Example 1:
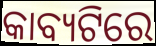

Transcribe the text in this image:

କାବ୍ୟଟିରେ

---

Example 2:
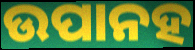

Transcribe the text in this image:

ଉପାନହ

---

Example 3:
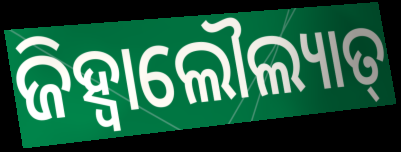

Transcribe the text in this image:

ଜିହ୍ଵାଲୌଲ୍ୟାତ୍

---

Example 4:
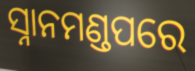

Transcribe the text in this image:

ସ୍ନାନମଣ୍ଡପରେ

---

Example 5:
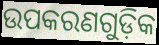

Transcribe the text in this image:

ଉପକରଣଗୁଡ଼ିକ